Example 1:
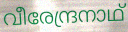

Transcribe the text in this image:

വീരേന്ദ്രനാഥ്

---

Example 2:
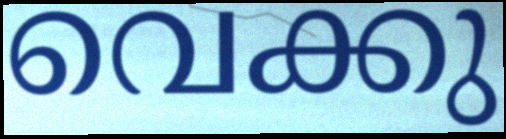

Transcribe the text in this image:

വെക്കു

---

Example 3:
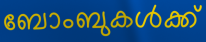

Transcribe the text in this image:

ബോംബുകൾക്ക്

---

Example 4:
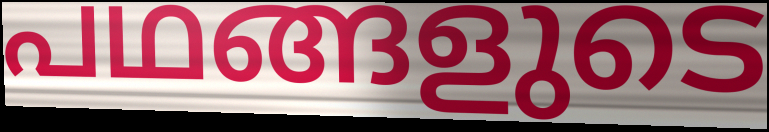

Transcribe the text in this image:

പഥങ്ങളുടെ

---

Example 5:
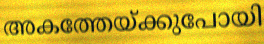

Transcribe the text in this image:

അകത്തേയ്ക്കുപോയി